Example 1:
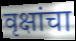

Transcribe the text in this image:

वृक्षांचा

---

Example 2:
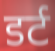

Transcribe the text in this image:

डर्ट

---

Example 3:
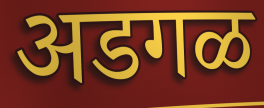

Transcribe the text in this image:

अडगळ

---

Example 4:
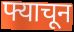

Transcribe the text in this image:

फ्याचून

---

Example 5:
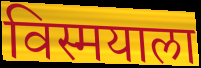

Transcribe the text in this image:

विस्मयाला